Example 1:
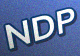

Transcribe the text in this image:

NDP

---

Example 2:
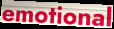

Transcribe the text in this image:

emotional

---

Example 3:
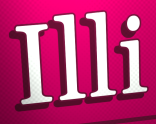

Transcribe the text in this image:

Illi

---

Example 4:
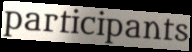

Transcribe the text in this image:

participants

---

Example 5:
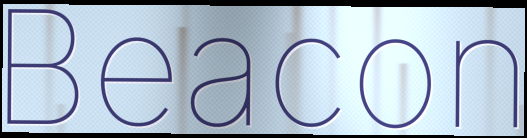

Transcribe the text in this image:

Beacon